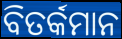
ବିତର୍କମାନ